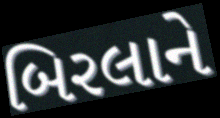
બિરલાને